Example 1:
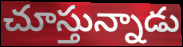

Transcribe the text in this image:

చూస్తున్నాడు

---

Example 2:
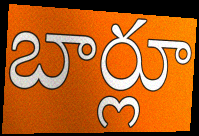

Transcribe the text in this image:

బార్లూ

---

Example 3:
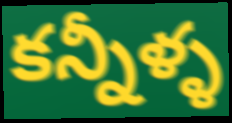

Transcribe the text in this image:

కన్నీళ్ళ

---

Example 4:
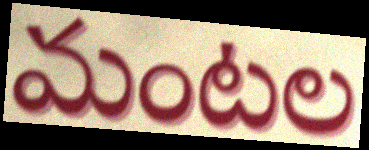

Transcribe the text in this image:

మంటల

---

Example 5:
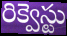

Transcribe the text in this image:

రిక్వెస్టు